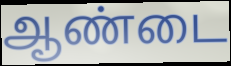
ஆண்டை